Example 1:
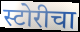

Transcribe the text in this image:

स्टोरीचा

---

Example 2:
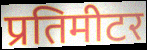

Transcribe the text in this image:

प्रतिमीटर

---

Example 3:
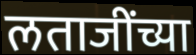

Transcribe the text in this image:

लताजींच्या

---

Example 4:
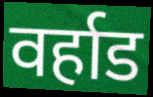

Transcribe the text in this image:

वर्हाड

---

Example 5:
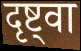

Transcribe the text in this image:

दृष्ट्वा